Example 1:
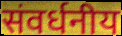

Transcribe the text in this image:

संवर्धनीय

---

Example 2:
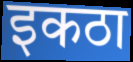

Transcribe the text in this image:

इकठा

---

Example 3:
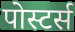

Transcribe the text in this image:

पोस्टर्स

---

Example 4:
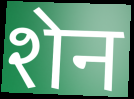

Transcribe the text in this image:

शेन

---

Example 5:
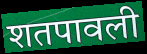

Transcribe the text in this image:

शतपावली